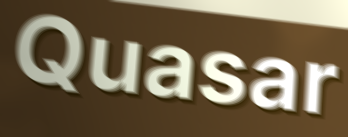
Quasar